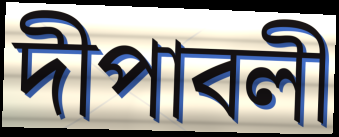
দীপাবলী